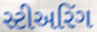
સ્ટીઅરિંગ